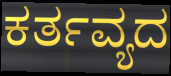
ಕರ್ತವ್ಯದ